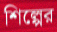
শিল্পের